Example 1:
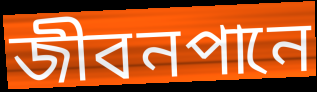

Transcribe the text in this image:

জীবনপানে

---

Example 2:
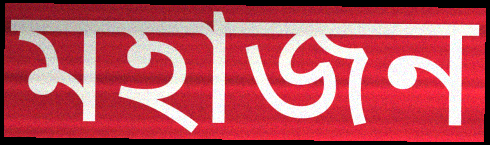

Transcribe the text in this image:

মহাজন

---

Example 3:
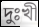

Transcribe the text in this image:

দুঃখী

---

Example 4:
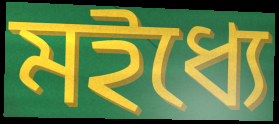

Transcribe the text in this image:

মইধ্যে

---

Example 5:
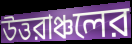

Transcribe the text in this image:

উত্তরাঞ্চলের